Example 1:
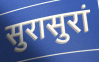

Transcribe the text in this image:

सुरासुरां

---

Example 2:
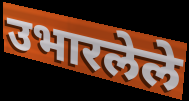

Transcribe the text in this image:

उभारलेले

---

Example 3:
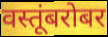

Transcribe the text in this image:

वस्तूंबरोबर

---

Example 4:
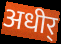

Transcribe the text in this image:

अधीर्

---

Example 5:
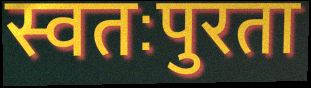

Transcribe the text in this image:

स्वतःपुरता